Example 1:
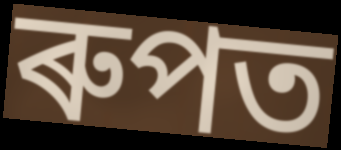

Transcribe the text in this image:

ৰুপত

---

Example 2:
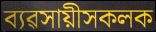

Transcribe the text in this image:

ব্যৱসায়ীসকলক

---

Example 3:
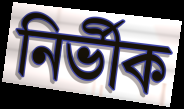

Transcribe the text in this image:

নিৰ্ভীক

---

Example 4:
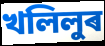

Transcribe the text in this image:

খলিলুৰ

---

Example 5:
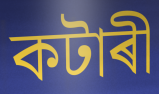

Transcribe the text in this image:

কটাৰী